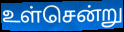
உள்சென்று